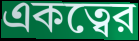
একত্বের